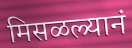
मिसळल्यानं